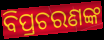
ବିପ୍ରଚରଣଙ୍କ